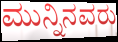
ಮುನ್ನಿನವರು